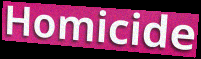
Homicide